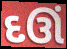
દઊં